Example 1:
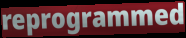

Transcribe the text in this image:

reprogrammed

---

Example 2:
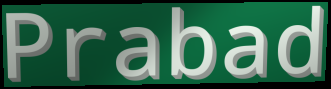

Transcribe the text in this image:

Prabad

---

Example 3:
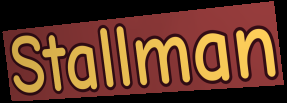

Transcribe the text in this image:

Stallman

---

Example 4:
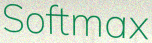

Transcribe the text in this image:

Softmax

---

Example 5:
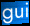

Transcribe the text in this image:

gui